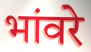
भांवरे